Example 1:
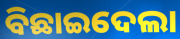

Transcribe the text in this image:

ବିଛାଇଦେଲା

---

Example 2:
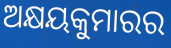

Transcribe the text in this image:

ଅକ୍ଷୟକୁମାରର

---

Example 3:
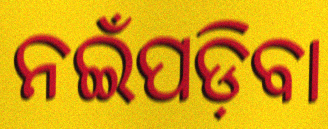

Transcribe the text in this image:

ନଇଁପଡ଼ିବା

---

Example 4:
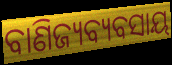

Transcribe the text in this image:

ବାଣିଜ୍ୟବ୍ୟବସାୟ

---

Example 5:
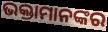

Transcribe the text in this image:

ଭକ୍ତାମାନଙ୍କର